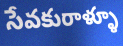
సేవకురాళ్ళూ